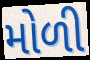
મોળી